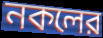
নকলের